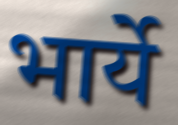
भार्ये